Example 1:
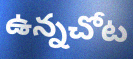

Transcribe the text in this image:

ఉన్నచోట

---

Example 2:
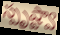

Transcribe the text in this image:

స్పృష్ట్వా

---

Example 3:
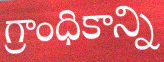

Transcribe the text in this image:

గ్రాంధికాన్ని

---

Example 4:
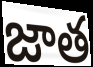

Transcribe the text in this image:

జాత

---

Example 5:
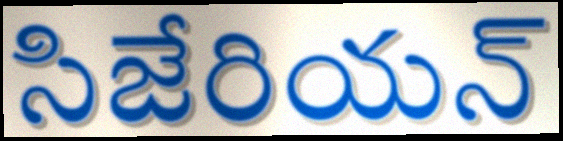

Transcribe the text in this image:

సిజేరియన్